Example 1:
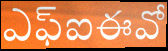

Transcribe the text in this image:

ఎఫ్ఐఈవో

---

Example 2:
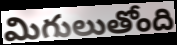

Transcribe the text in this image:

మిగులుతోంది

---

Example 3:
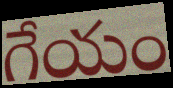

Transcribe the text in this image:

గేయం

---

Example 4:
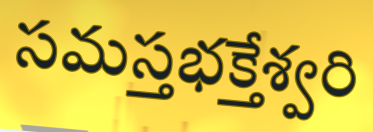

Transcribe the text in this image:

సమస్తభక్తేశ్వరి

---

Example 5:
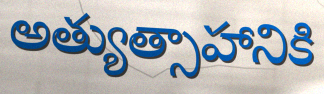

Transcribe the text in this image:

అత్యుత్సాహానికి